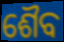
ଶୈବ